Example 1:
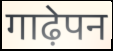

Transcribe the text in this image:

गाढ़ेपन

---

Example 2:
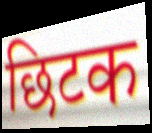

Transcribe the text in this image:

छिटक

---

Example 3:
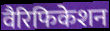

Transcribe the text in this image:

वैरिफिकेशन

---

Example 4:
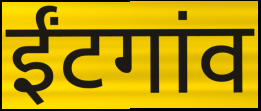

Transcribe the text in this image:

ईंटगांव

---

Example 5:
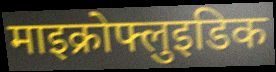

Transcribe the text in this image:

माइक्रोफ्लुइडिक